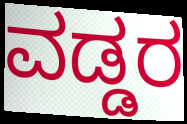
ವಡ್ಡರ